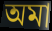
অমা